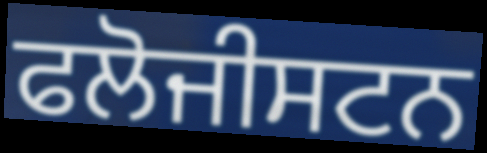
ਫਲੋਜੀਸਟਨ